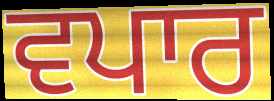
ਵਪਾਰ